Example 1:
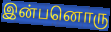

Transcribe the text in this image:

இன்பனொரு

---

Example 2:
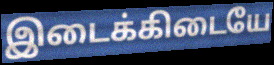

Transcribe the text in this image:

இடைக்கிடையே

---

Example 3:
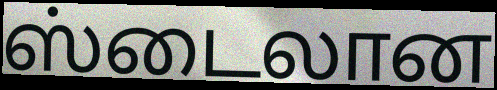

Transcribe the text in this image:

ஸ்டைலான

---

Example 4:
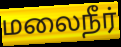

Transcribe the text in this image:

மலைநீர்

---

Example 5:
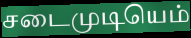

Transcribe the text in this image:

சடைமுடியெம்